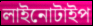
লাইনোটাইপ